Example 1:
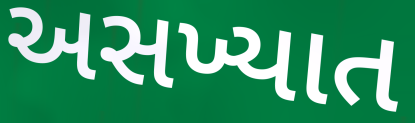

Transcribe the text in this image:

અસખ્યાત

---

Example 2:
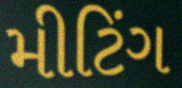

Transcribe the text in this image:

મીટિંગ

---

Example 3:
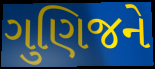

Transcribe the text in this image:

ગુણિજને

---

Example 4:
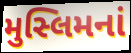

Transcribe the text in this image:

મુસ્લિમનાં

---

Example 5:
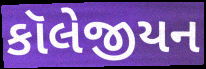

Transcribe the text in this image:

કૉલેજીયન